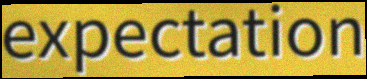
expectation